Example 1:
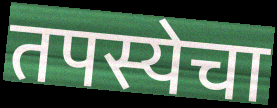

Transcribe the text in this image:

तपस्येचा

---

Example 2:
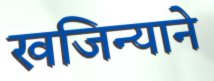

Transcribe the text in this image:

खजिन्याने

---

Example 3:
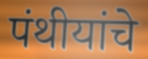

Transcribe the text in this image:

पंथीयांचे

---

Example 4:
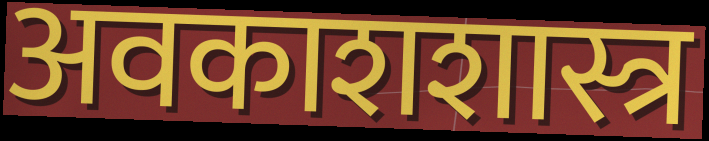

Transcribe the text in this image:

अवकाशशास्त्र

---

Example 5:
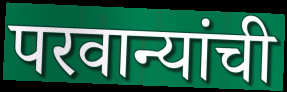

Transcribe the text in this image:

परवान्यांची